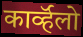
कार्व्हॅलो